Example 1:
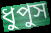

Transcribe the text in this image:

ধুপুস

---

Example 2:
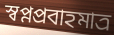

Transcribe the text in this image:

স্বপ্নপ্রবাহমাত্র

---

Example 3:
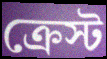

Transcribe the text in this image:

ক্রেস্ট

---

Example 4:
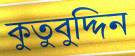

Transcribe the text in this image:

কুতুবুদ্দিন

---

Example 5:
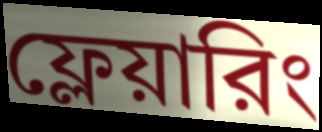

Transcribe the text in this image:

ফ্লেয়ারিং